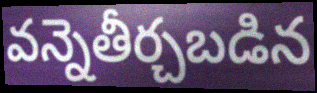
వన్నెతీర్చబడిన